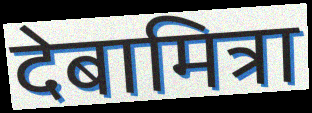
देबामित्रा